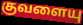
குவளையு